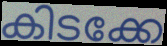
കിടക്കേ